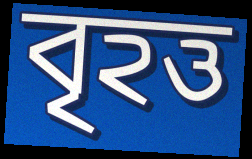
বৃহত্ত